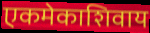
एकमेकाशिवाय